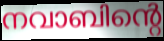
നവാബിന്റെ